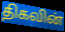
திகவின்